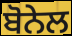
ਬੋਨੇਲ